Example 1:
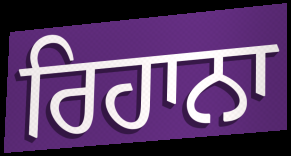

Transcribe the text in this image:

ਰਿਹਾਨਾ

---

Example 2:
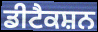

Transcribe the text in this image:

ਡੀਟੈਕਸ਼ਨ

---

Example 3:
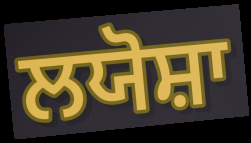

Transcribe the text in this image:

ਲਯੋਸ਼ਾ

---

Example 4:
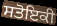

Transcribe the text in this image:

ਸਤੋਇਕੀ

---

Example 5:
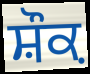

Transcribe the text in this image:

ਸ਼ੌਕ਼